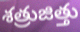
శత్రుజిత్తు